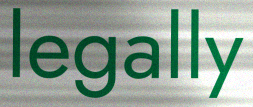
legally